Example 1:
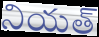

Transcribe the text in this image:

నియత్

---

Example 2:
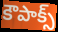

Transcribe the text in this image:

కౌపాక్స్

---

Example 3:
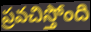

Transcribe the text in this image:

ప్రవచిస్తోంది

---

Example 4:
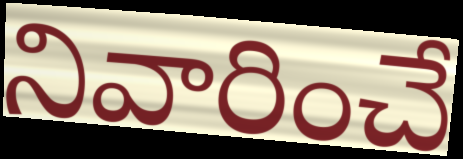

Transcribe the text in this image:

నివారించే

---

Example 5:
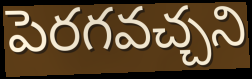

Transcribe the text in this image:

పెరగవచ్చని